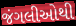
જંગલીઓથી